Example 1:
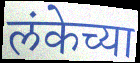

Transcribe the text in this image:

लंकेच्या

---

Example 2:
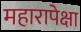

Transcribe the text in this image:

महारापेक्षा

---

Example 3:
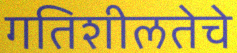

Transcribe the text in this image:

गतिशीलतेचे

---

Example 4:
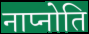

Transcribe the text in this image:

नाप्नोति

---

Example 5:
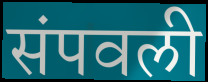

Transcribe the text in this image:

संपवली